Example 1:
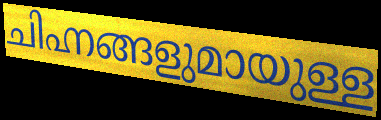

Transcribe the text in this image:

ചിഹ്നങ്ങളുമായുള്ള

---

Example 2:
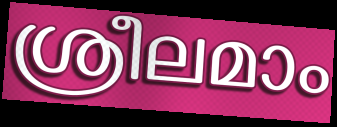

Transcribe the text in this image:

ശ്രീലമാം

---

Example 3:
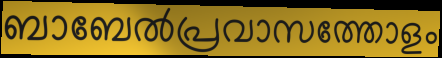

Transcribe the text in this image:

ബാബേൽപ്രവാസത്തോളം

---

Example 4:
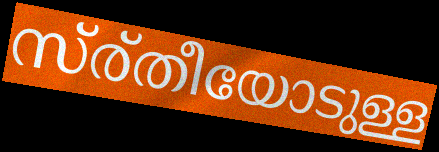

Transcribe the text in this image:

സ്ര്തീയോടുള്ള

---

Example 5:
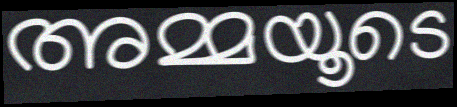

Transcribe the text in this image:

അമ്മയൂടെ